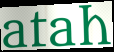
atah